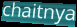
chaitnya